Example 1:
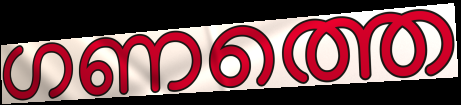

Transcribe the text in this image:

ഗണത്തെ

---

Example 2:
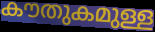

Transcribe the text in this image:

കൗതുകമുള്ള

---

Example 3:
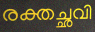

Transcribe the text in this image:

രക്തച്ഛവി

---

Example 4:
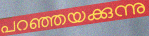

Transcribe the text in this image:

പറഞ്ഞയക്കുന്നു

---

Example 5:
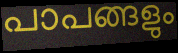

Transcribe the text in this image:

പാപങ്ങളും